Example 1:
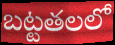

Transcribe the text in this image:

బట్టతలలో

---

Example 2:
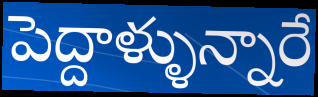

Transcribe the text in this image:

పెద్దాళ్ళున్నారే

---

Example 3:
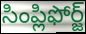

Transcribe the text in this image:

సింప్లిఫోర్జ్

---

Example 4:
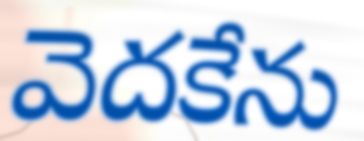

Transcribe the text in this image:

వెదకేను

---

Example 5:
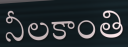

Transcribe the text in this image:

నీలకాంతి